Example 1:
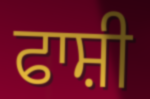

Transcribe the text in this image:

ਫਾਸ਼ੀ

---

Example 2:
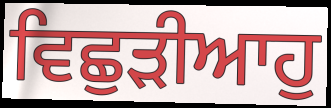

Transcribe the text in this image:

ਵਿਛੁੜੀਆਹੁ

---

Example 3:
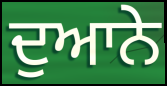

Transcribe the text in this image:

ਦੁਆਨੇ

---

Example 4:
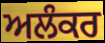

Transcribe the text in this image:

ਅਲੰਕਰ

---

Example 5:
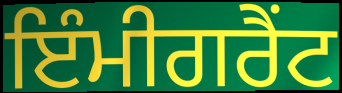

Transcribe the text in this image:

ਇੰਮੀਗਰੈਂਟ